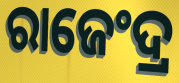
ରାଜେଂଦ୍ର